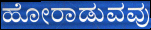
ಹೋರಾಡುವವು